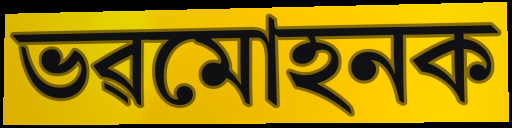
ভৱমোহনক